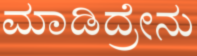
ಮಾಡಿದ್ರೇನು